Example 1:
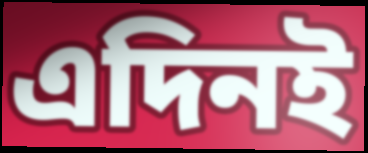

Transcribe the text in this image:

এদিনই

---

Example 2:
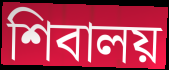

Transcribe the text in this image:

শিবালয়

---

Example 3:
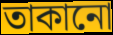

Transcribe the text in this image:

তাকানো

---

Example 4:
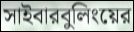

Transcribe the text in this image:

সাইবারবুলিংয়ের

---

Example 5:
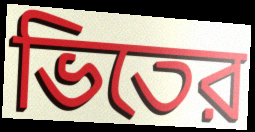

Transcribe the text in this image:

ভিতের